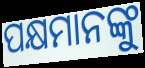
ପକ୍ଷମାନଙ୍କୁ